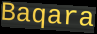
Baqara